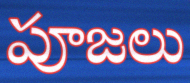
పూజలు